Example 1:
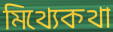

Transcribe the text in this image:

মিথ্যেকথা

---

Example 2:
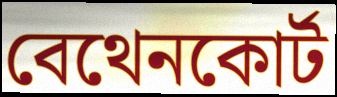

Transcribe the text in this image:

বেথেনকোর্ট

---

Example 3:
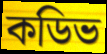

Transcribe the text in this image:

কডিভ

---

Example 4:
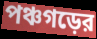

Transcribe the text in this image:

পঞ্চগড়ের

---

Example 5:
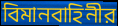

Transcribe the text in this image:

বিমানবাহিনীর